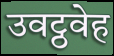
उवट्ठवेह